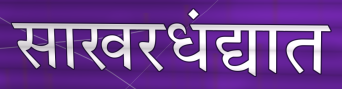
साखरधंद्यात